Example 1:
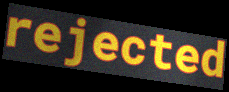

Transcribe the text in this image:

rejected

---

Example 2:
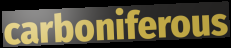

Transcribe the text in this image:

carboniferous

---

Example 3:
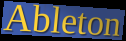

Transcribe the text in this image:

Ableton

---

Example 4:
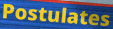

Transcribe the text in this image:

Postulates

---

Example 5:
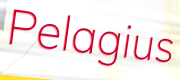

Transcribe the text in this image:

Pelagius